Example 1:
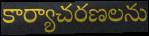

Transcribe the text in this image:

కార్యాచరణలను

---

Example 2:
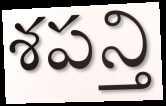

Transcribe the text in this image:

శపన్తి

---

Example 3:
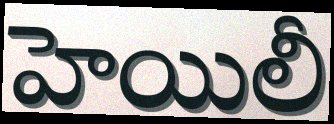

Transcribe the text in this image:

హెయిలీ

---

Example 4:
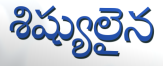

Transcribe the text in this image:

శిష్యులైన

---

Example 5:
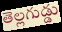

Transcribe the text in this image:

తెల్లగుడ్డు